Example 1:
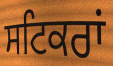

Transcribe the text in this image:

ਸਟਿਕਰਾਂ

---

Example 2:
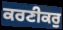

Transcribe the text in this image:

ਕਰਣੀਕਰੁ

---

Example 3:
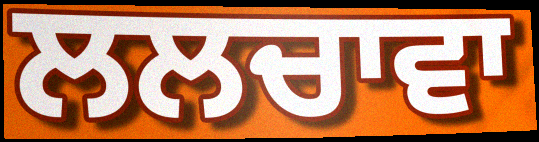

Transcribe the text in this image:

ਲਲਚਾਵਾ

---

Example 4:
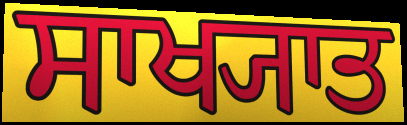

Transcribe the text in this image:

ਸਾਖ੍ਯਾਤ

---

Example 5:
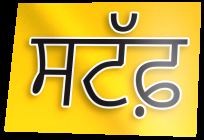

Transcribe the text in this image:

ਸਟੱਫ਼